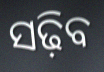
ସଢ଼ିବ